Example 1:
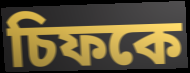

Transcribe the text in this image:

চিফকে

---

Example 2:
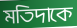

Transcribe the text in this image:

মতিদাকে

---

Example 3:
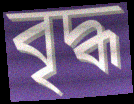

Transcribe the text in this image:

বৃদ্ধ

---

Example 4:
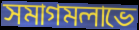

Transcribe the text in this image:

সমাগমলাভে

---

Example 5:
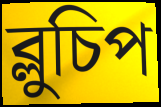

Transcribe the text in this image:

ব্লুচিপ